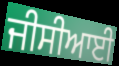
ਜੀਸੀਆਈ